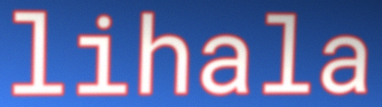
lihala